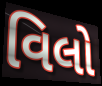
વિલો